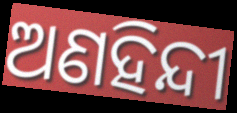
ଅଣହିନ୍ଦୀ